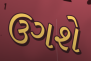
ઉગશે